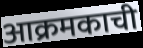
आक्रमकाची